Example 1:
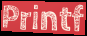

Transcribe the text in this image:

Printf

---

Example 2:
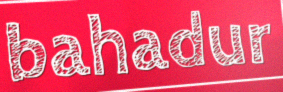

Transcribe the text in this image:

bahadur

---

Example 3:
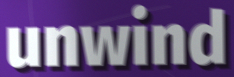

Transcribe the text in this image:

unwind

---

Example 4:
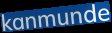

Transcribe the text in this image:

kanmunde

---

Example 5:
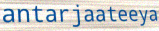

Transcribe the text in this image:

antarjaateeya